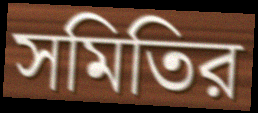
সমিতির